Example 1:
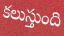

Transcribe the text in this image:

కలుస్తుంది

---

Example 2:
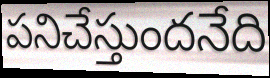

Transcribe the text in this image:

పనిచేస్తుందనేది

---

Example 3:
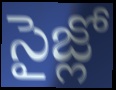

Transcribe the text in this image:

సైజ్లో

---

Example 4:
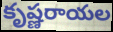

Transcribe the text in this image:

కృష్ణరాయల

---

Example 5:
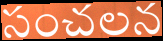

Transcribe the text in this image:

సంచలన